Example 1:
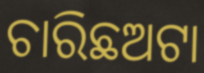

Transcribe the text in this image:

ଚାରିଛଅଟା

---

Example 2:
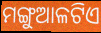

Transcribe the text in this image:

ମଙ୍ଗୁଆଳଟିଏ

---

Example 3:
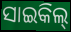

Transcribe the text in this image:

ସାଇକିଲ୍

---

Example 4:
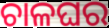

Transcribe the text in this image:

ଚାଳଘର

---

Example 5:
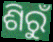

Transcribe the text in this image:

ଶିରୁଁ